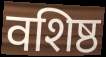
वशिष्ठ